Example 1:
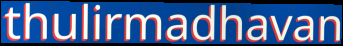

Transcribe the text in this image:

thulirmadhavan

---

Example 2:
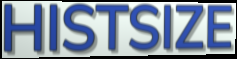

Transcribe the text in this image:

HISTSIZE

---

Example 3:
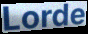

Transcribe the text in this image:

Lorde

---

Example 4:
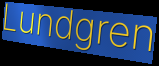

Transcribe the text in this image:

Lundgren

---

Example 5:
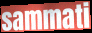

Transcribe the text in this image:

sammati